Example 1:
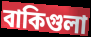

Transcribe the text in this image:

বাকিগুলা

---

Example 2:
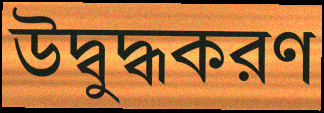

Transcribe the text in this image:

উদ্বুদ্ধকরণ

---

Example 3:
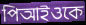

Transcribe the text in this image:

পিআইওকে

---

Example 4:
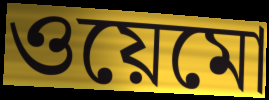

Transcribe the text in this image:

ওয়েমো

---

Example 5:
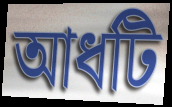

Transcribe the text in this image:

আধটি